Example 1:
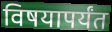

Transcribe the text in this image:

विषयापर्यंत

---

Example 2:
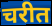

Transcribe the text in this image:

चरीत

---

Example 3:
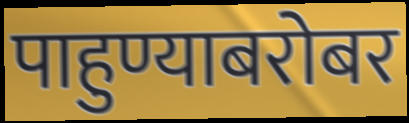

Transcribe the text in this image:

पाहुण्याबरोबर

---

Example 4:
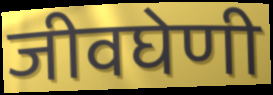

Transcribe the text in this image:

जीवघेणी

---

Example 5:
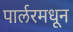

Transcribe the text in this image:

पार्लरमधून